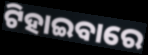
ଟିହାଇବାରେ